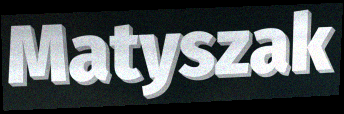
Matyszak